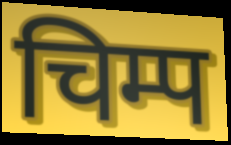
चिम्प